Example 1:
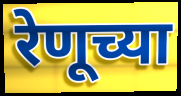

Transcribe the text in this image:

रेणूच्या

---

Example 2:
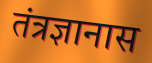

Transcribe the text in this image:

तंत्रज्ञानास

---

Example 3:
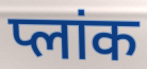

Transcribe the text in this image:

प्लांक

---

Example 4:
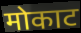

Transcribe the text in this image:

मोकाट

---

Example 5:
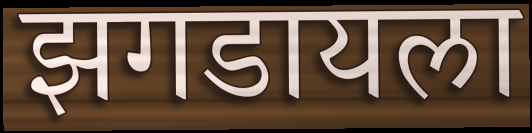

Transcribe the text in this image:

झगडायला